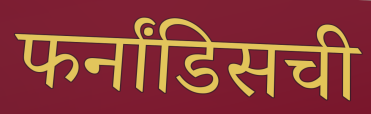
फर्नांडिसची